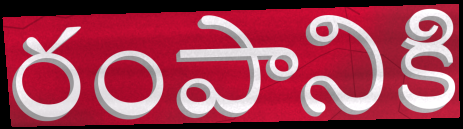
రంపానికి